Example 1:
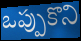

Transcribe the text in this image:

ఒప్పుకొని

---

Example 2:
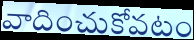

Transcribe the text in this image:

వాదించుకోవటం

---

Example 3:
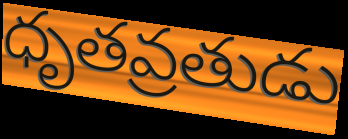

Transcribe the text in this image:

ధృతవ్రతుడు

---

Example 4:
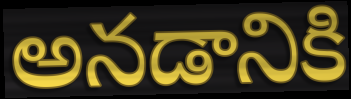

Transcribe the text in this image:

అనడానికి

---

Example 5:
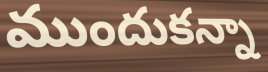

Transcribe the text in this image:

ముందుకన్నా